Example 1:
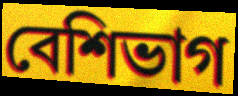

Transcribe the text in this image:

বেশিভাগ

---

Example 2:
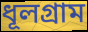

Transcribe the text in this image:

ধূলগ্রাম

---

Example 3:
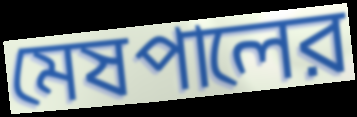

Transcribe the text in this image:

মেষপালের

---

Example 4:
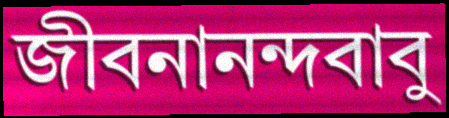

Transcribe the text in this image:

জীবনানন্দবাবু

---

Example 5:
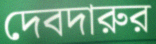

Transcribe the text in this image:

দেবদারুর